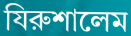
যিরুশালেম